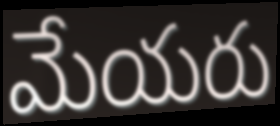
మేయరు